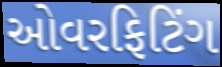
ઓવરફિટિંગ